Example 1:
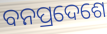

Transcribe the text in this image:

ବନପ୍ରଦେଶେ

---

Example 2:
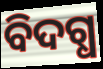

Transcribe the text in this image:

ବିଦଗ୍ଧ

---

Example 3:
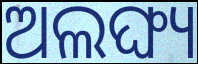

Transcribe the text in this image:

ଅଲଙ୍ଘ୍ୟ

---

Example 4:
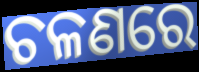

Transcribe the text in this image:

ଚଳଣରେ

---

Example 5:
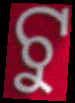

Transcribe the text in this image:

ଟୁ